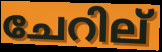
ചേറില്